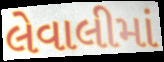
લેવાલીમાં